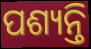
ପଶ୍ୟନ୍ତି